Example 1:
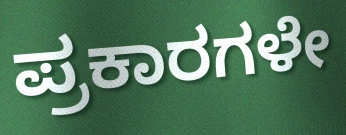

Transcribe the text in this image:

ಪ್ರಕಾರಗಳೇ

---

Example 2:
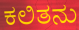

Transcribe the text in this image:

ಕಲಿತನು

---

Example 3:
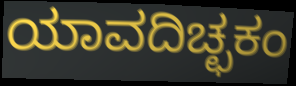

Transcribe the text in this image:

ಯಾವದಿಚ್ಛಕಂ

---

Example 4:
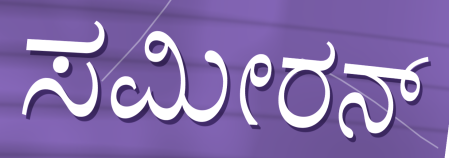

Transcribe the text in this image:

ಸಮೀರನ್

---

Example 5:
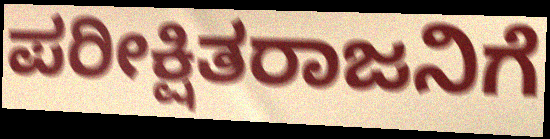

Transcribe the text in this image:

ಪರೀಕ್ಷಿತರಾಜನಿಗೆ